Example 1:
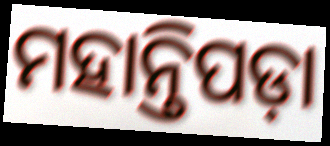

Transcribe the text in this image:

ମହାନ୍ତିପଡ଼ା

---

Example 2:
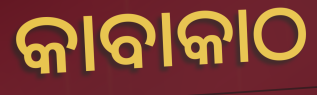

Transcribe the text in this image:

କାବାକାଠ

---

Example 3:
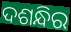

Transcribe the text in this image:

ଦଶନ୍ଧିର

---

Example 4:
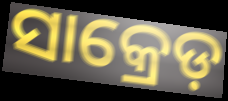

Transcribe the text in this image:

ସାକ୍ରେଡ଼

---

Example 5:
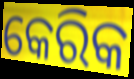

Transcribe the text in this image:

କେରିକ